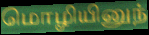
மொழியினுந்